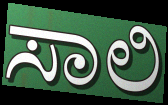
ಸಾಲಿ